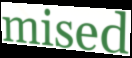
mised